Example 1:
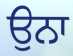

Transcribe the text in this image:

ਉਨਾ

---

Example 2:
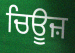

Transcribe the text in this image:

ਚਿਊਜ਼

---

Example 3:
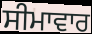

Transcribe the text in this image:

ਸੀਮਾਵਾਰ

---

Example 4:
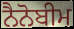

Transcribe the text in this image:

ਨੈਨੋਬੀਮ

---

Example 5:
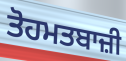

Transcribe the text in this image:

ਤੋਹਮਤਬਾਜ਼ੀ